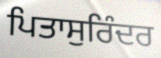
ਪਿਤਾਸੁਰਿੰਦਰ